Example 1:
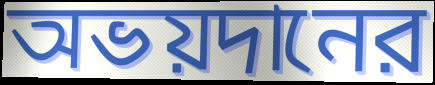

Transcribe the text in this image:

অভয়দানের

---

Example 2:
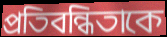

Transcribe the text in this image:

প্রতিবন্ধিতাকে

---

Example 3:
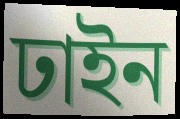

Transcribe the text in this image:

ঢাইন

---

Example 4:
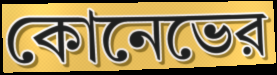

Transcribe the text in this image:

কোনেভের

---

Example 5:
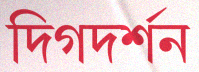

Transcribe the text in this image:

দিগদর্শন